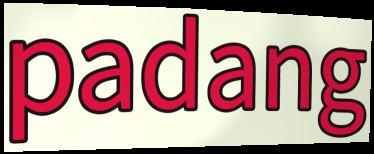
padang